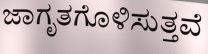
ಜಾಗೃತಗೊಳಿಸುತ್ತವೆ